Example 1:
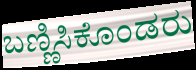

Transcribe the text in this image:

ಬಣ್ಣಿಸಿಕೊಂಡರು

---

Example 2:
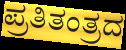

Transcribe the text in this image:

ಪ್ರತಿತಂತ್ರದ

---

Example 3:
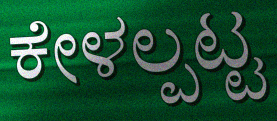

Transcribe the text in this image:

ಕೇಳಲ್ಪಟ್ಟ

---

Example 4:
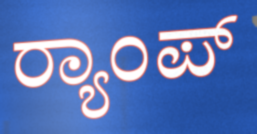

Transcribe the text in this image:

ರ‍್ಯಾಂಪ್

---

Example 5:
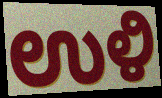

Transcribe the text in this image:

ಉಳಿ